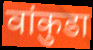
वांकुडा